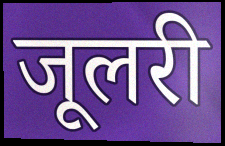
जूलरी